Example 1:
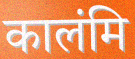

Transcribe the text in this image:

कालंमि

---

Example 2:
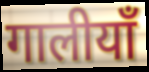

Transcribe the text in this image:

गालीयाँ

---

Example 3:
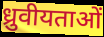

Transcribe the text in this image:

ध्रुवीयताओं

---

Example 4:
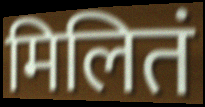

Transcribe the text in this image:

मिलितं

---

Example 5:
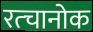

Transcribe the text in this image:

रत्चानोक